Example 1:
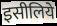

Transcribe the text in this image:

इसीलिये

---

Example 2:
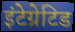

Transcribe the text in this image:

इंटेग्रेटिड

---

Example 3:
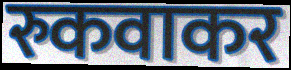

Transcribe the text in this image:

रुकवाकर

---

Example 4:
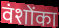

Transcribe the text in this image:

वंशोंका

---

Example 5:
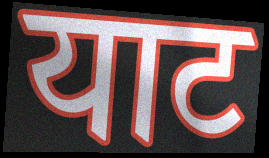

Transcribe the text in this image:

याट